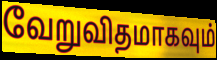
வேறுவிதமாகவும்